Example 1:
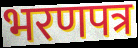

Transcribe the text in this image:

भरणपत्र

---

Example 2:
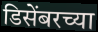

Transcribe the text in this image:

डिसेंबरच्या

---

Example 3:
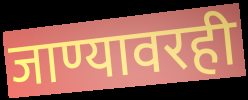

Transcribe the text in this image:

जाण्यावरही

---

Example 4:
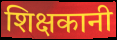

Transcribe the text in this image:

शिक्षकानी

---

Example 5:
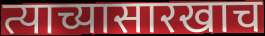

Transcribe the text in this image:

त्याच्यासारखाच